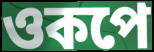
ওকপে